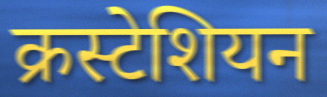
क्रस्टेशियन